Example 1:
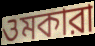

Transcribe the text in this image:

ওমকারা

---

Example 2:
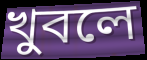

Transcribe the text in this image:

খুবলে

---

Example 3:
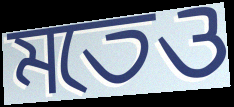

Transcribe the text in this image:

মতেও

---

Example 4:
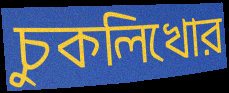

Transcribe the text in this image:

চুকলিখোর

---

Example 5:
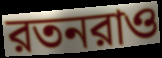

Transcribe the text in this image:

রতনরাও